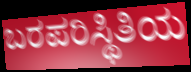
ಬರಪರಿಸ್ಥಿತಿಯ